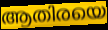
ആതിരയെ